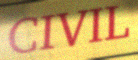
CIVIL